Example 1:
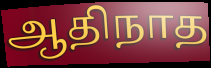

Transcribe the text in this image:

ஆதிநாத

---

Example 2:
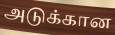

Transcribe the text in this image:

அடுக்கான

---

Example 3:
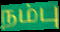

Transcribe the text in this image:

நம்பு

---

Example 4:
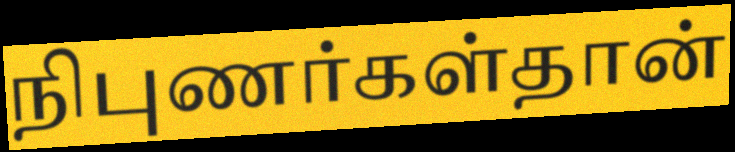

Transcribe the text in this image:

நிபுணர்கள்தான்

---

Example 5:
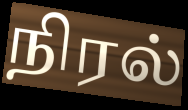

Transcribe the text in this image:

நிரல்